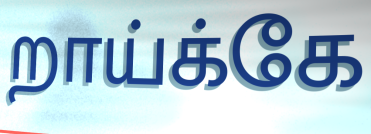
றாய்க்கே